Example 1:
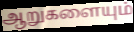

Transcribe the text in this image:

ஆறுகளையும்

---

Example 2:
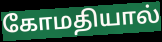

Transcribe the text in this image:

கோமதியால்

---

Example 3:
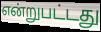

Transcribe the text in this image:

என்றுபட்டது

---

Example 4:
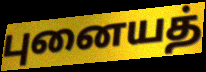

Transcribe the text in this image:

புனையத்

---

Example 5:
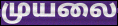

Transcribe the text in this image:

முயலை